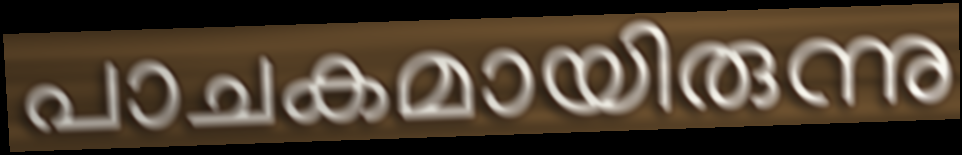
പാചകമായിരുന്നു